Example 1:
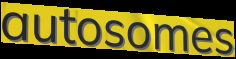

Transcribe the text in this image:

autosomes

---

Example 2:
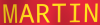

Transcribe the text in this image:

MARTIN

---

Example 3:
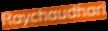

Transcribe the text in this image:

Raychaudhari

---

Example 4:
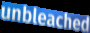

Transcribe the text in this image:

unbleached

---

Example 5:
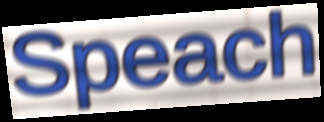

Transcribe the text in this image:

Speach